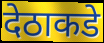
देठाकडे